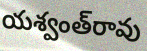
యశ్వంత్‌రావు